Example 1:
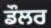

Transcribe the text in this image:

ਡੌਲਰ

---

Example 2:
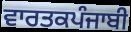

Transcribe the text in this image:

ਵਾਰਤਕਪੰਜਾਬੀ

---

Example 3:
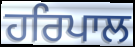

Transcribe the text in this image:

ਹਰਿਪਾਲ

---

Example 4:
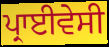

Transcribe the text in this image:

ਪ੍ਰਾਈਵੇਸੀ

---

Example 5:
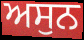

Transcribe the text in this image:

ਅਸੁਨ